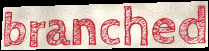
branched